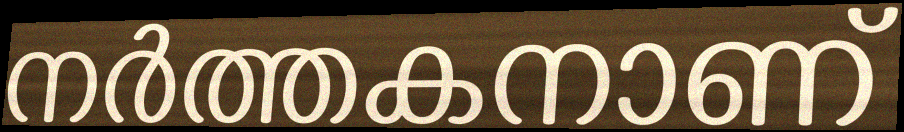
നർത്തകനാണ്